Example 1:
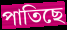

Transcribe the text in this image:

পাতিছে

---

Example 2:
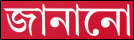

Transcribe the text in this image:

জানানো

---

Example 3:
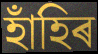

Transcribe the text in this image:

হাঁহিৰ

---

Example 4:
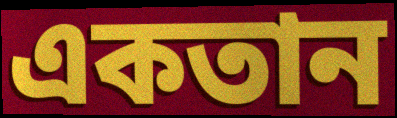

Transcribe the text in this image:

একতান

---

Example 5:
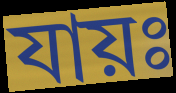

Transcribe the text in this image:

যায়ঃ